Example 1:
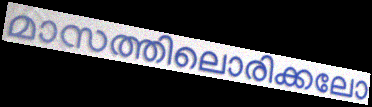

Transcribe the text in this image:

മാസത്തിലൊരിക്കലോ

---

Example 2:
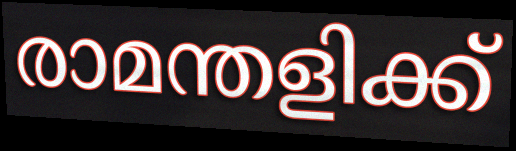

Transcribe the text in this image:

രാമന്തളിക്ക്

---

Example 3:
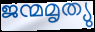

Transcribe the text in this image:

ജന്മമൃത്യു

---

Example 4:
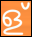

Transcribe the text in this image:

ള്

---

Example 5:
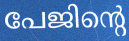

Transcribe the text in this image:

പേജിന്റെ